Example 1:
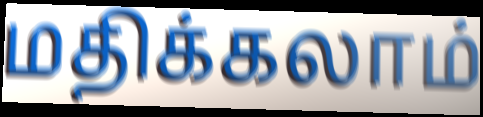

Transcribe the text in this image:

மதிக்கலாம்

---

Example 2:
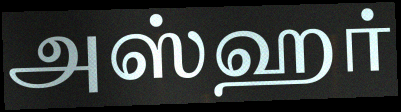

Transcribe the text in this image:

அஸ்ஹர்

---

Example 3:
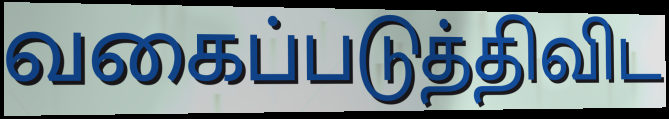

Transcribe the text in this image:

வகைப்படுத்திவிட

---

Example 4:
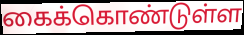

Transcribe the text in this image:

கைக்கொண்டுள்ள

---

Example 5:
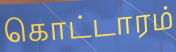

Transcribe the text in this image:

கொட்டாரம்